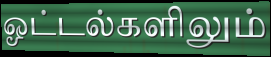
ஓட்டல்களிலும்